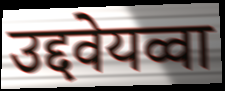
उद्दवेयव्वा